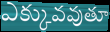
ఎక్కువవుతూ